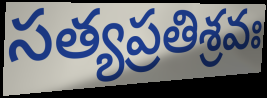
సత్యప్రతిశ్రవః